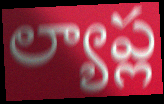
ల్యాప్ల